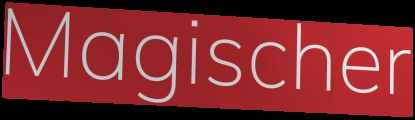
Magischer